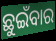
ଛୁଇଁବାର